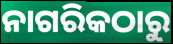
ନାଗରିକଠାରୁ